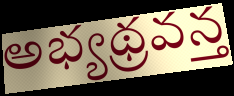
అభ్యథ్రవన్త